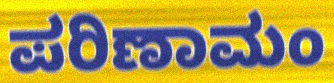
ಪರಿಣಾಮಂ